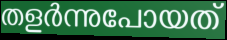
തളർന്നുപോയത്